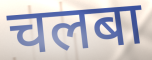
चलबा